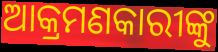
ଆକ୍ରମଣକାରୀଙ୍କୁ